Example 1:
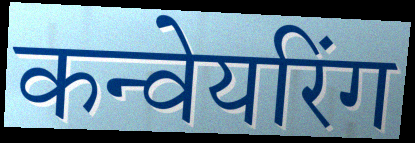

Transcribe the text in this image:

कन्वेयरिंग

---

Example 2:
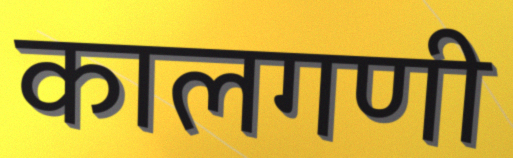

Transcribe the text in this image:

कालगणी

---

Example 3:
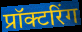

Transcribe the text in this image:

प्रॉक्टरिंग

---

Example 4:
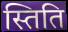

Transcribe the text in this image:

स्तिति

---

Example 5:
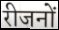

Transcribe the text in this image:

रीजनों